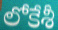
లోకేశీ